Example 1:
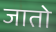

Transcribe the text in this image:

जातो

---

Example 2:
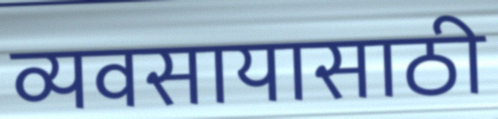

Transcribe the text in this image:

व्यवसायासाठी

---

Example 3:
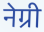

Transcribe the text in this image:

नेग्री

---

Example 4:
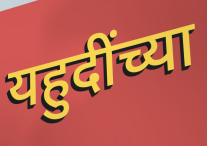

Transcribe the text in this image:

यहुदींच्या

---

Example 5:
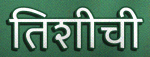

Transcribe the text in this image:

तिशीची